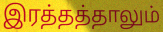
இரத்தத்தாலும்